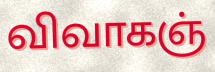
விவாகஞ்